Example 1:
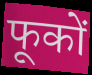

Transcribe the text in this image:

फूकों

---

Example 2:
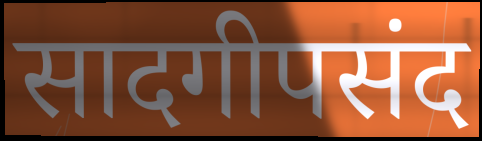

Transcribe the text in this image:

सादगीपसंद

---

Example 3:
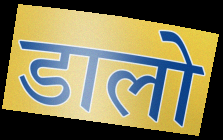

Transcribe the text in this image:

डालो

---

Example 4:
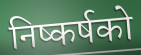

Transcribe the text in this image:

निष्कर्षको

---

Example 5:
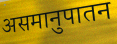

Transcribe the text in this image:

असमानुपातन